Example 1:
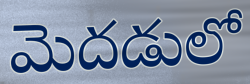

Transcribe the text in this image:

మెదడులో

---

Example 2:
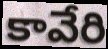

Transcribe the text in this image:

కావేరి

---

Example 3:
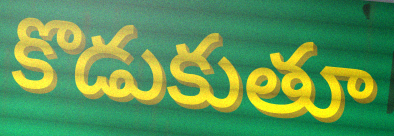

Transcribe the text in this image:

కొడుకుతూ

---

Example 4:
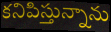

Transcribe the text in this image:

కనిపిస్తున్నాను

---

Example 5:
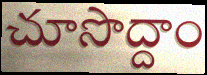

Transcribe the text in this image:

చూసొద్దాం